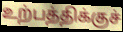
உற்பத்திக்குச்